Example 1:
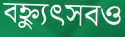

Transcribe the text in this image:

বহ্ন্যুৎসবও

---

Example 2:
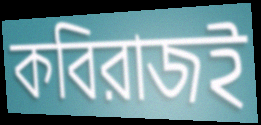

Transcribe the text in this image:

কবিরাজই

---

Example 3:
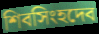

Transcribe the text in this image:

শিবসিংহদেব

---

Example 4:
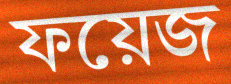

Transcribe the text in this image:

ফয়েজ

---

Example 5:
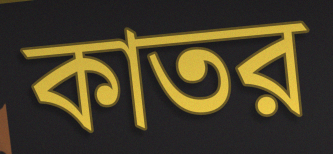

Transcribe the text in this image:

কাতর